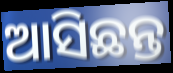
ଆସିଛନ୍ତ